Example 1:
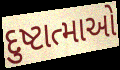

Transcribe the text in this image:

દુષ્ટાત્માઓ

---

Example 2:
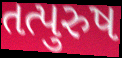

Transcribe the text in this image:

તત્પુરુષ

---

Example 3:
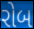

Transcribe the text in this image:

રોબ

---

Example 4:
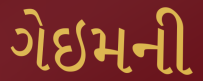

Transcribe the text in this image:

ગેઇમની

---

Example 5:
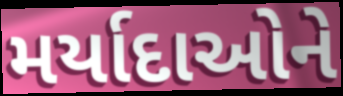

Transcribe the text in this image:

મર્યાદાઓને